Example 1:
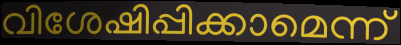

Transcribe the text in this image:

വിശേഷിപ്പിക്കാമെന്ന്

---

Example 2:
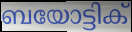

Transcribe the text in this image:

ബയോട്ടിക്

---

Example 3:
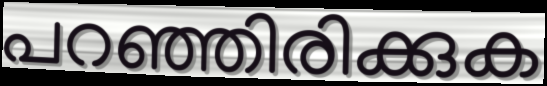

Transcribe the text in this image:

പറഞ്ഞിരിക്കുക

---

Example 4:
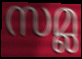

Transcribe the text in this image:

സമ്ല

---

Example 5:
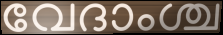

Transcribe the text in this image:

വേദാംശ്ച